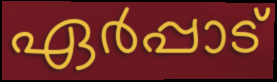
ഏർപ്പാട്